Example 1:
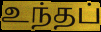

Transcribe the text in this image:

உந்தப்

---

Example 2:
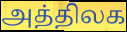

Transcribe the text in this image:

அத்திலக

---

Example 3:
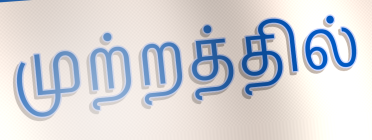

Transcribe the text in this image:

முற்றத்தில்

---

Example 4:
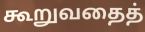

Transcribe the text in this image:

கூறுவதைத்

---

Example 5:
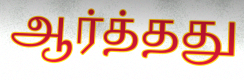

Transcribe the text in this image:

ஆர்த்தது